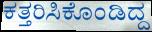
ಕತ್ತರಿಸಿಕೊಂಡಿದ್ದ